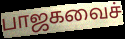
பாஜகவைச்